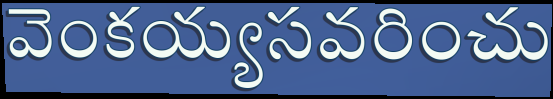
వెంకయ్యసవరించు